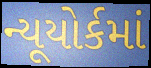
ન્યૂયોર્કમાં